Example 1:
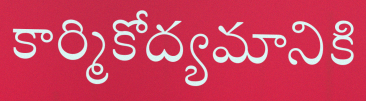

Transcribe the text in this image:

కార్మికోద్యమానికి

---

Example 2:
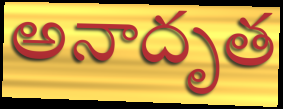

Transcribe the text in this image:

అనాదృత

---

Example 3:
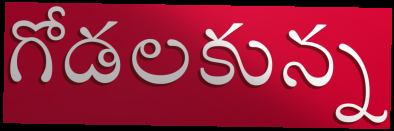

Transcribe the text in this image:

గోడలకున్న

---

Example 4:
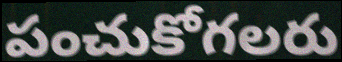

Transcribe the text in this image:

పంచుకోగలరు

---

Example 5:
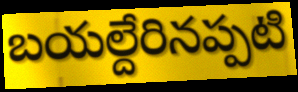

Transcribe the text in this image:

బయల్దేరినప్పటి